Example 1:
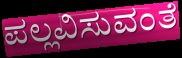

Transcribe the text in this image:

ಪಲ್ಲವಿಸುವಂತೆ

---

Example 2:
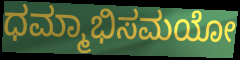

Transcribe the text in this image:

ಧಮ್ಮಾಭಿಸಮಯೋ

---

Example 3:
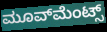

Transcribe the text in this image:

ಮೂವ್‍ಮೆಂಟ್ಸ್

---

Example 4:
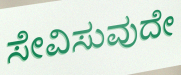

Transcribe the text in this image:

ಸೇವಿಸುವುದೇ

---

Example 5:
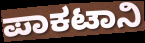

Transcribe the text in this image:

ಪಾಕಟಾನಿ